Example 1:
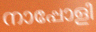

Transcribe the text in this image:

നാപ്പോളി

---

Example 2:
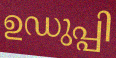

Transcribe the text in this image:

ഉഡുപ്പി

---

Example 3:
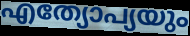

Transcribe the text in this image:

എത്യോപ്യയും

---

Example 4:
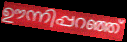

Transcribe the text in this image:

ഊന്നിപ്പറഞ്ഞ്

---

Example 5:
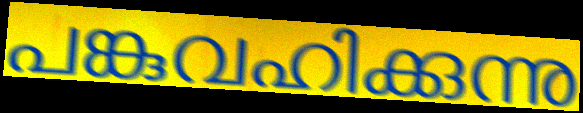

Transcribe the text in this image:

പങ്കുവഹിക്കുന്നു